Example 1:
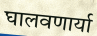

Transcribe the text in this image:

घालवणार्या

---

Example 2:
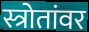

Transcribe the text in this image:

स्त्रोतांवर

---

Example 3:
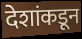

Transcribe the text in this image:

देशांकडून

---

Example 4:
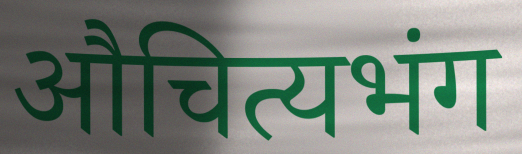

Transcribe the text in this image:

औचित्यभंग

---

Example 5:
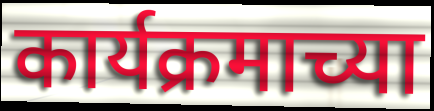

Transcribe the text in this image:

कार्यक्रमाच्या